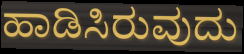
ಹಾಡಿಸಿರುವುದು